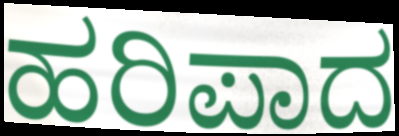
ಹರಿಪಾದ